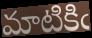
మాటికిఁ